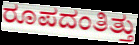
ರೂಪದಂತಿತ್ತು